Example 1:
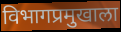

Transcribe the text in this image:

विभागप्रमुखाला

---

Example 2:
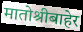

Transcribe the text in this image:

मातोश्रीबाहेर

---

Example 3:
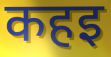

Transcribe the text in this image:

कहइ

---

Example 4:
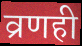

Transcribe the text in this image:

व्रणही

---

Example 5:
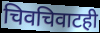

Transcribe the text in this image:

चिवचिवाटही